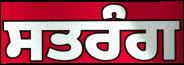
ਸਤਰੰਗ